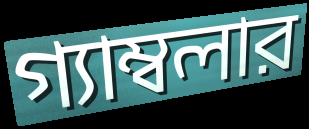
গ্যাম্বলার